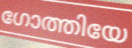
ഗോത്തിയേ